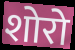
शोरो